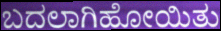
ಬದಲಾಗಿಹೋಯಿತು